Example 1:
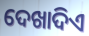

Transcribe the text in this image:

ଦେଖାଦିଏ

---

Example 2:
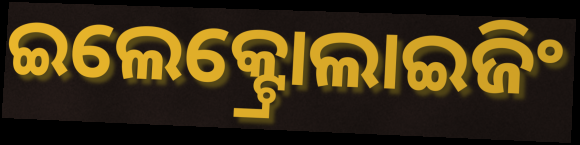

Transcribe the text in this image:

ଇଲେକ୍ଟ୍ରୋଲାଇଜିଂ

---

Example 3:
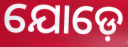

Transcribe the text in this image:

ଯୋଡ଼େ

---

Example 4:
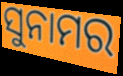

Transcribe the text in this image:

ସୁନାମର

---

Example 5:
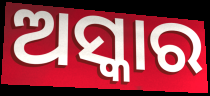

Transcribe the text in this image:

ଅସ୍କାର